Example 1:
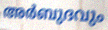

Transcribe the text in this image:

അർബുദവും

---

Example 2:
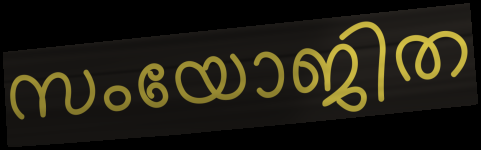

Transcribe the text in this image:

സംയോജിത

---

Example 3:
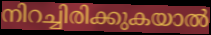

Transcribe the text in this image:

നിറച്ചിരിക്കുകയാൽ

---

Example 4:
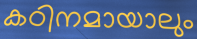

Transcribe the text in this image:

കഠിനമായാലും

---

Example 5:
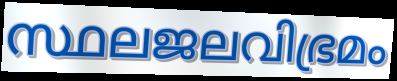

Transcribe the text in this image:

സ്ഥലജലവിഭ്രമം